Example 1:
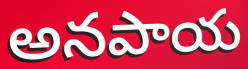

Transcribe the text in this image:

అనపాయ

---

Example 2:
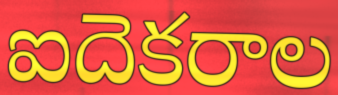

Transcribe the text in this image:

ఐదెకరాల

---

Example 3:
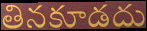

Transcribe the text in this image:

తినకూడదు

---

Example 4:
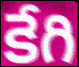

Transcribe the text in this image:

కేగి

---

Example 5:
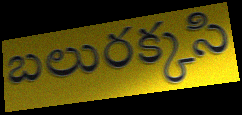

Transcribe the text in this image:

బలురక్కసి